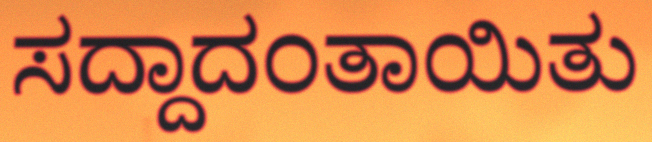
ಸದ್ದಾದಂತಾಯಿತು